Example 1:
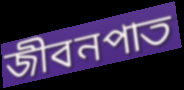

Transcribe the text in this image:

জীবনপাত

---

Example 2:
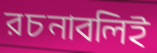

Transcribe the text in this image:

রচনাবলিই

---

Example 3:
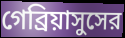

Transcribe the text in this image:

গেব্রিয়াসুসের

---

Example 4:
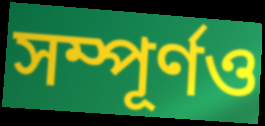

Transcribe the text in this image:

সম্পূর্ণও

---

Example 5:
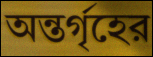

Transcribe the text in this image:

অন্তর্গৃহের